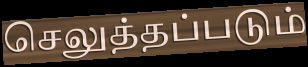
செலுத்தப்படும்